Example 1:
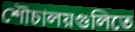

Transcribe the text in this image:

শৌচালয়গুলিতে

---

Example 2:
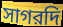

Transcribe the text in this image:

সাগরদি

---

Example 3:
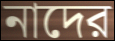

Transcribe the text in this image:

নাদের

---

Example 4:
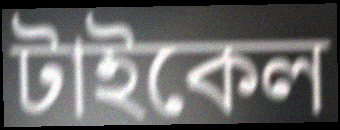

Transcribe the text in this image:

টাইকেল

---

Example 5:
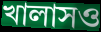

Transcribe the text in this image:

খালাসও